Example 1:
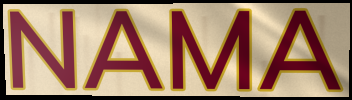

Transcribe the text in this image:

NAMA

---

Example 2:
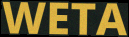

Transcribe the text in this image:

WETA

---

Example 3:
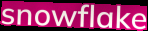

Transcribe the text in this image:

snowflake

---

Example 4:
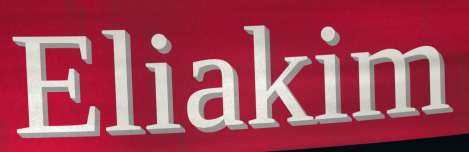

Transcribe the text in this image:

Eliakim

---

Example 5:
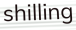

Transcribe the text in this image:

shilling